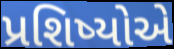
પ્રશિષ્યોએ